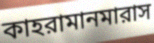
কাহরামানমারাস